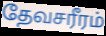
தேவசரீரம்